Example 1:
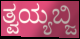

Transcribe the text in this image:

ತ್ವಯ್ಯಬ್ಜಿ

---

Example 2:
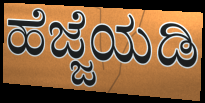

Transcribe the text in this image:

ಹೆಜ್ಜೆಯಡಿ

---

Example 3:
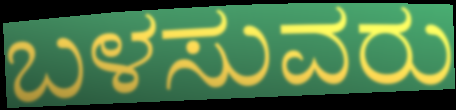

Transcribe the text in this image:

ಬಳಸುವರು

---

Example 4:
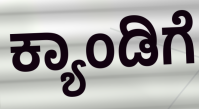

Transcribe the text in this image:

ಕ್ಯಾಂಡಿಗೆ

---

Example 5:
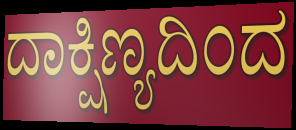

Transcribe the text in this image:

ದಾಕ್ಷಿಣ್ಯದಿಂದ